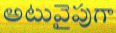
అటువైపుగా